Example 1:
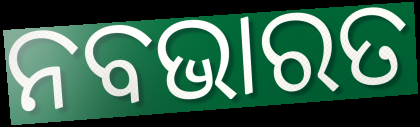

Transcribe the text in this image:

ନବଭାରତ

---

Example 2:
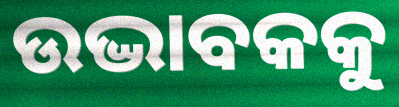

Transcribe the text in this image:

ଉଦ୍ଭାବକକୁ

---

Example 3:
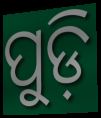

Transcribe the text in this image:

ପୁଡ଼ି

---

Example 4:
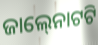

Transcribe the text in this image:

ଜାଲ୍‍ନୋଟଟି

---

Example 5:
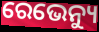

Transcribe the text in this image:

ରେଭେନ୍ୟୁ